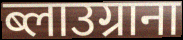
ब्लाउग्राना